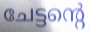
ചേട്ടന്റെ